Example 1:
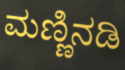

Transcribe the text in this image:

ಮಣ್ಣಿನಡಿ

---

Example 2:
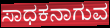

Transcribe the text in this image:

ಸಾಧಕನಾಗುವ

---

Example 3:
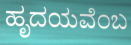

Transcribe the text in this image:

ಹೃದಯವೆಂಬ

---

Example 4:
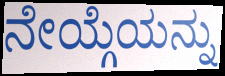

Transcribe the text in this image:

ನೇಯ್ಗೆಯನ್ನು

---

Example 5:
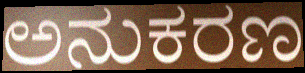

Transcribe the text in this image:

ಅನುಕರಣ